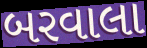
બરવાલા